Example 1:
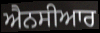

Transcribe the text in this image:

ਐਨਸੀਆਰ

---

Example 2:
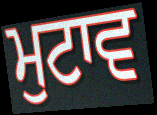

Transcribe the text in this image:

ਮੁਟਾਵ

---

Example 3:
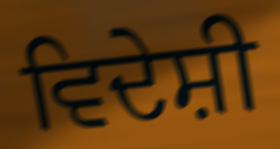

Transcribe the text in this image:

ਵਿਦੇਸ਼ੀ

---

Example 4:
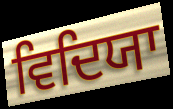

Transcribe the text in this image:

ਵਿਦਿਯਾ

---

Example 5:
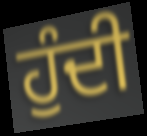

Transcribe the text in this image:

ਹੁੰਦੀ